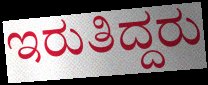
ಇರುತಿದ್ದರು